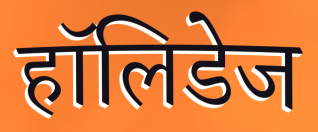
हॉलिडेज